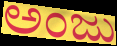
ಅಂಜು